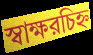
স্বাক্ষরচিহ্ন